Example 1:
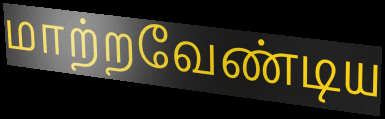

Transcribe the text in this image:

மாற்றவேண்டிய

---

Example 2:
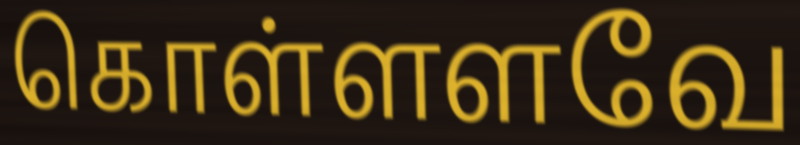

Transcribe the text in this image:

கொள்ளளவே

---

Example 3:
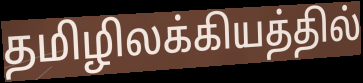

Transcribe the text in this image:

தமிழிலக்கியத்தில்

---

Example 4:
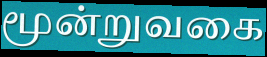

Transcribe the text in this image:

மூன்றுவகை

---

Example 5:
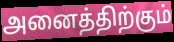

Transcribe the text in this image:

அனைத்திற்கும்